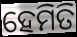
ହେମିତି